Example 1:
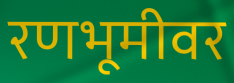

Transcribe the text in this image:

रणभूमीवर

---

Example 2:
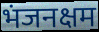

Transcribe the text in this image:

भंजनक्षम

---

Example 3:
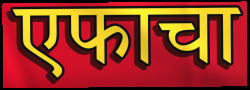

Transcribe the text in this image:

एफाचा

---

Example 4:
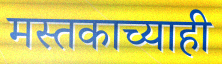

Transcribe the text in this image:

मस्तकाच्याही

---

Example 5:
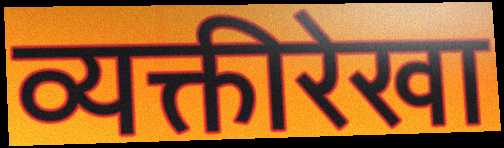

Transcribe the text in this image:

व्यक्तीरेखा